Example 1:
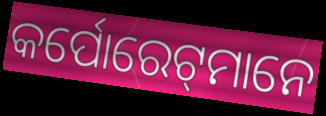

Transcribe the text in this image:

କର୍ପୋରେଟ୍‌ମାନେ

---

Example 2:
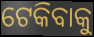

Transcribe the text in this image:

ଟେକିବାକୁ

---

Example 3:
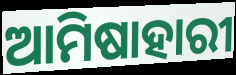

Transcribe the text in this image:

ଆମିଷାହାରୀ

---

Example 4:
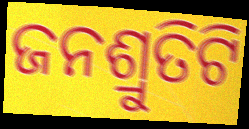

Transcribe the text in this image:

ଜନଶ୍ରୁତିଟି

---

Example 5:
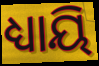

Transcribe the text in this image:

ଧ୍ୟାୟି